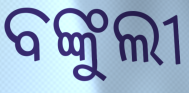
ବଙ୍କୁଲୀ